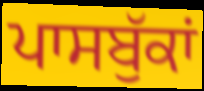
ਪਾਸਬੁੱਕਾਂ